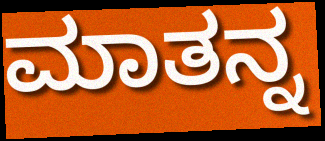
ಮಾತನ್ನ